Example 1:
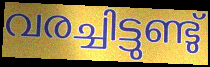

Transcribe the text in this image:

വരച്ചിട്ടുണ്ടു്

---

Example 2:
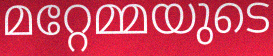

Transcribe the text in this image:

മറ്റേമ്മയുടെ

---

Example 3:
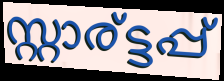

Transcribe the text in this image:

സ്റ്റാര്ട്ടപ്പ്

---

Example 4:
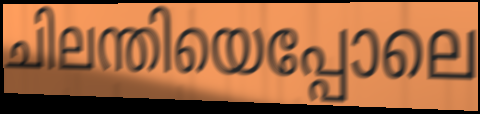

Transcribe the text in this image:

ചിലന്തിയെപ്പോലെ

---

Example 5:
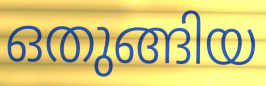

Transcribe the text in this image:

ഒതുങ്ങിയ